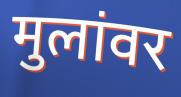
मुलांवर